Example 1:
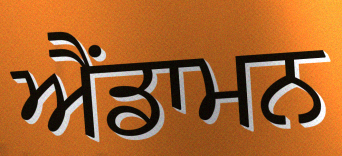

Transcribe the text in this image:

ਐਂਡਾਮਨ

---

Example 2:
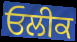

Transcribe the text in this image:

ਓਲੀਕ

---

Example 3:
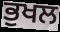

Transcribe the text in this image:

ਭੁਖਲ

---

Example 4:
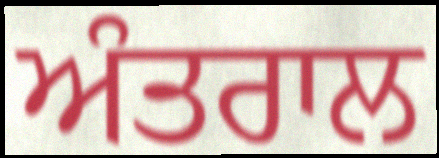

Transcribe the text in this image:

ਅੰਤਰਾਲ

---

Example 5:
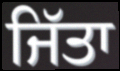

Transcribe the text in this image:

ਜਿੱਤਾ